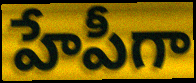
హేపీగా